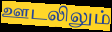
ஊடலிலும்